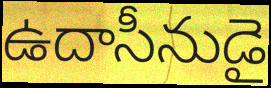
ఉదాసీనుడై